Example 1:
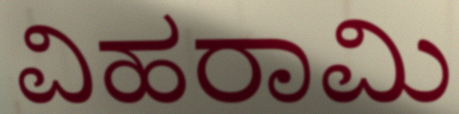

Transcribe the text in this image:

ವಿಹರಾಮಿ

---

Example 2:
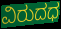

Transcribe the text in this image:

ವಿರುದಧ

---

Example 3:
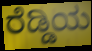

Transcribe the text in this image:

ರೆಡ್ಡಿಯ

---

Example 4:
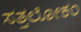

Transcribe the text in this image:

ಸತ್ತಲೋಕಂ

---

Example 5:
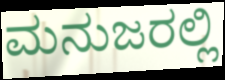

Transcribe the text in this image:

ಮನುಜರಲ್ಲಿ